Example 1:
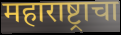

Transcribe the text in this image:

महाराष्ट्राचा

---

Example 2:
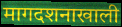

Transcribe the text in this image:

मागदशनाखाली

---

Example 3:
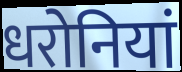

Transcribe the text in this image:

धरोनियां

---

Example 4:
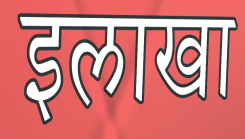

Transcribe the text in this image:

इलाखा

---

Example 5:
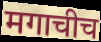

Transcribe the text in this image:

मगाचीच